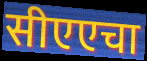
सीएएचा